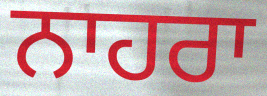
ਨਾਹਰਾ